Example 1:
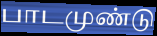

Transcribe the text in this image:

பாடமுண்டு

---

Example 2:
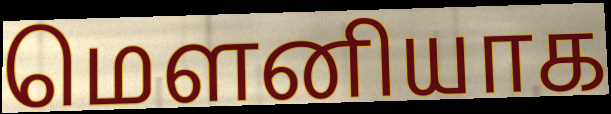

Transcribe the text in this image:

மெளனியாக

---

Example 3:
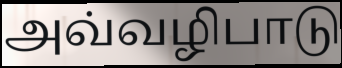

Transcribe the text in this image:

அவ்வழிபாடு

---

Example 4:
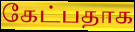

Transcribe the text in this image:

கேட்பதாக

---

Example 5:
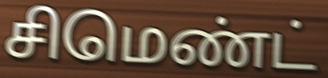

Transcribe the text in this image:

சிமெண்ட்